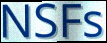
NSFs